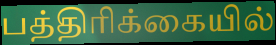
பத்திரிக்கையில்